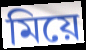
মিয়ে